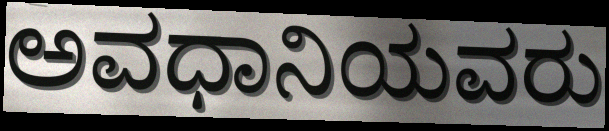
ಅವಧಾನಿಯವರು